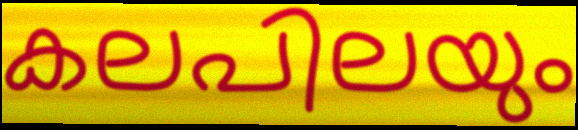
കലപിലയും